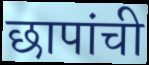
छापांची